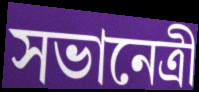
সভানেত্রী